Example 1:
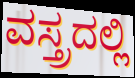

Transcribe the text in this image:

ವಸ್ತ್ರದಲ್ಲಿ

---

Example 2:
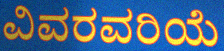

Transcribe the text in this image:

ವಿವರವರಿಯೆ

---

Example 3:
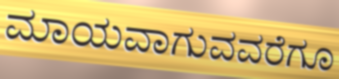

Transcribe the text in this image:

ಮಾಯವಾಗುವವರೆಗೂ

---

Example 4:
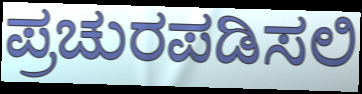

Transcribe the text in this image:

ಪ್ರಚುರಪಡಿಸಲಿ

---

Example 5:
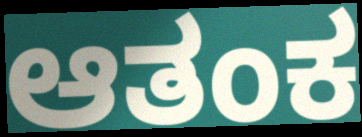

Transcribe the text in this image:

ಆತಂಕ